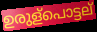
ഉരുള്പൊട്ടല്